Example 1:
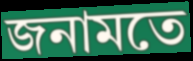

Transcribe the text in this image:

জনামতে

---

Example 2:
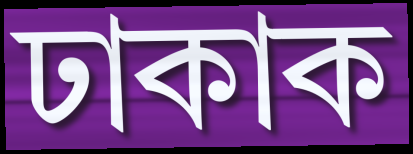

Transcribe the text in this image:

ঢাকাক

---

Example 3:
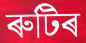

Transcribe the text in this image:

ৰুটিৰ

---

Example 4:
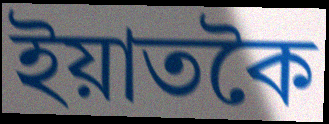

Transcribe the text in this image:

ইয়াতকৈ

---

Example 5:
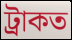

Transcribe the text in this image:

ট্ৰাকত